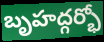
బృహద్గర్భో